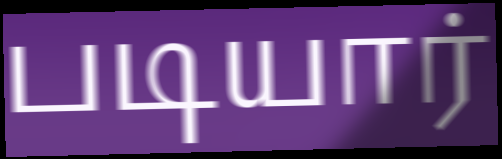
படியார்